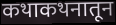
कथाकथनातून